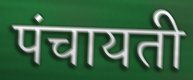
पंचायती